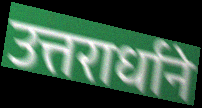
उत्तरार्धाने